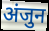
अंजुन